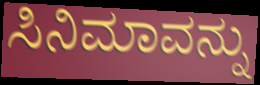
ಸಿನಿಮಾವನ್ನು